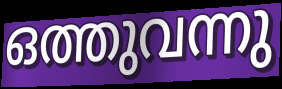
ഒത്തുവന്നു